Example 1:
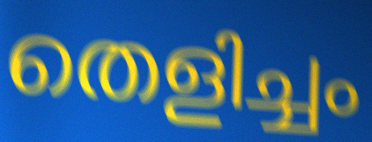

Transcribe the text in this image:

തെളിച്ചം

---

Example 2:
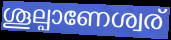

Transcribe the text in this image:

ശൂല്പാണേശ്വര്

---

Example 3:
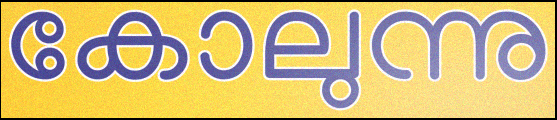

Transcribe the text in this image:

കോലുന്നു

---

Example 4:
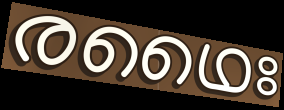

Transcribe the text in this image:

രഥൈഃ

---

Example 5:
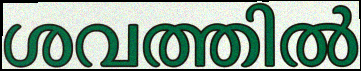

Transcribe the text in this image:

ശവത്തിൽ